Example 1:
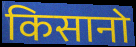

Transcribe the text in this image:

किसानो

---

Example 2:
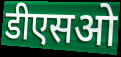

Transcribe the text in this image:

डीएसओ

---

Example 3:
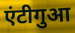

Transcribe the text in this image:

एंटीगुआ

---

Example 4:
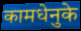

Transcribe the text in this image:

कामधेनुके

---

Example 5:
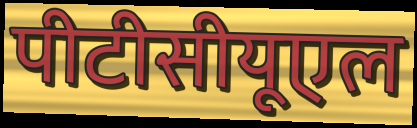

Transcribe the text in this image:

पीटीसीयूएल